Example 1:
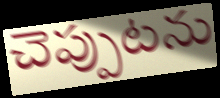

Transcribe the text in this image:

చెప్పుటను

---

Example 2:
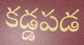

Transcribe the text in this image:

కడ్డపడ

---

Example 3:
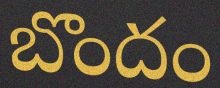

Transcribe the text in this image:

బొందం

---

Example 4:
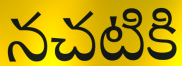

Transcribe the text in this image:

నచటికి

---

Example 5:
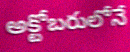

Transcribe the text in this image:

అక్టోబరులోనే